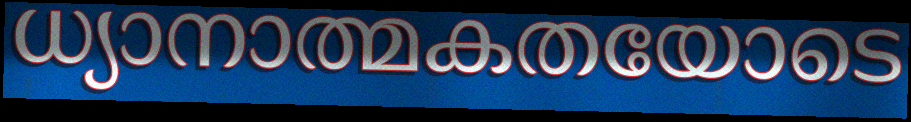
ധ്യാനാത്മകതയോടെ